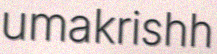
umakrishh